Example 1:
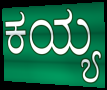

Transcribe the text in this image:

ಕಯ್ಯ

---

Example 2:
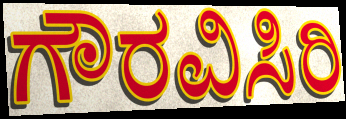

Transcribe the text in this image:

ಗೌರವಿಸಿರಿ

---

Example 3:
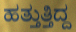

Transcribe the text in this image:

ಹತ್ತುತ್ತಿದ್ದ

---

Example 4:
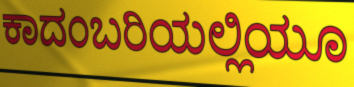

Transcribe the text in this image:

ಕಾದಂಬರಿಯಲ್ಲಿಯೂ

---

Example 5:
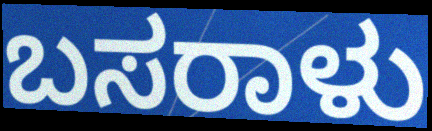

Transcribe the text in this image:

ಬಸರಾಳು